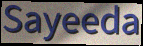
Sayeeda